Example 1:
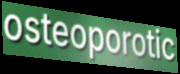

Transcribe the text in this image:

osteoporotic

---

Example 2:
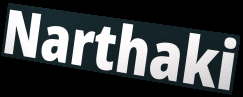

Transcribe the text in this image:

Narthaki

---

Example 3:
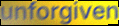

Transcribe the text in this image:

unforgiven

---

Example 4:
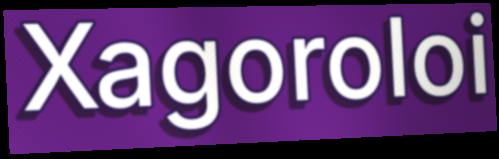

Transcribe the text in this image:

Xagoroloi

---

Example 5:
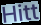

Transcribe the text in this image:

Hitt